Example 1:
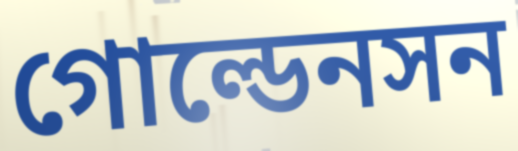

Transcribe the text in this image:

গোল্ডেনসন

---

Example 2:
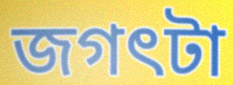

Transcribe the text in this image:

জগৎটা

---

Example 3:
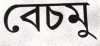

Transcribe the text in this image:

বেচমু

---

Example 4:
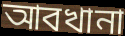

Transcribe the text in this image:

আবখানা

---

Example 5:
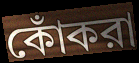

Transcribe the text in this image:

কোঁকরা